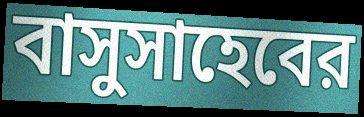
বাসুসাহেবের